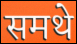
समथे